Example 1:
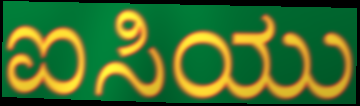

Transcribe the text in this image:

ಐಸಿಯು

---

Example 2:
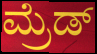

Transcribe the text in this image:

ಮ್ರೆಡ್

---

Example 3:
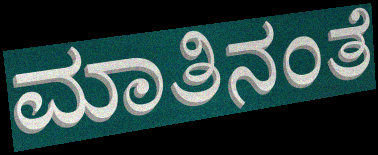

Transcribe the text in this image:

ಮಾತಿನಂತೆ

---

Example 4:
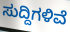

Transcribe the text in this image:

ಸುದ್ದಿಗಳಿವೆ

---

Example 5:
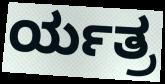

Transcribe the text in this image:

ರ್ಯತ್ರ